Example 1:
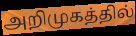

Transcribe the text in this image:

அறிமுகத்தில்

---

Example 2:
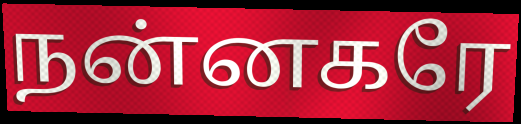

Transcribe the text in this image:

நன்னகரே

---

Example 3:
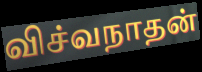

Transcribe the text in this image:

விச்வநாதன்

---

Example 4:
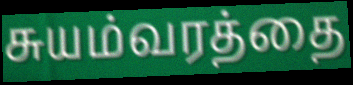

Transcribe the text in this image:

சுயம்வரத்தை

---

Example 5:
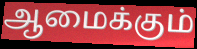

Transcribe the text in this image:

ஆமைக்கும்